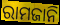
ରାମଜାନି